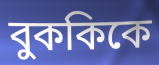
বুককিকে